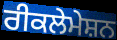
ਰੀਕਲੇਮੇਸ਼ਨ